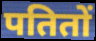
पतितों